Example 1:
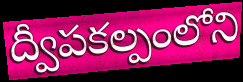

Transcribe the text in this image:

ద్వీపకల్పంలోని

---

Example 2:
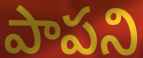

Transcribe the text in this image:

పాపని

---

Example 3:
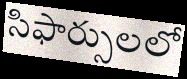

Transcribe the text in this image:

సిఫార్సులలో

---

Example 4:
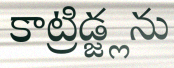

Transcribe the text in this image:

కాట్రిడ్జ్లను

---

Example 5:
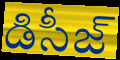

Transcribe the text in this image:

డిసీజ్